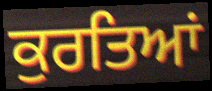
ਕੁਰਤਿਆਂ